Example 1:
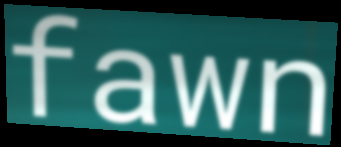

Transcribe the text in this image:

fawn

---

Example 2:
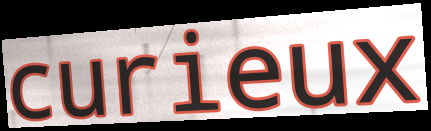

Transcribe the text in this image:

curieux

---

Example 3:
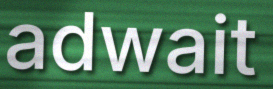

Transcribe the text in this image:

adwait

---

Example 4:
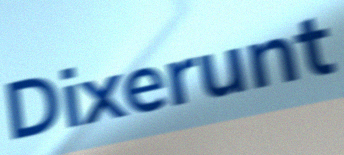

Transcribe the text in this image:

Dixerunt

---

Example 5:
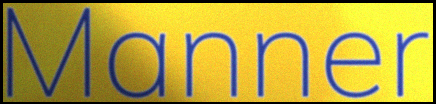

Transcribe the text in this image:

Manner